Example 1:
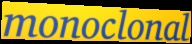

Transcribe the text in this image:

monoclonal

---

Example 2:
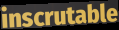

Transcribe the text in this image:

inscrutable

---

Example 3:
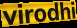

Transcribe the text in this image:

virodhi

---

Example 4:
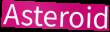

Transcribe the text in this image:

Asteroid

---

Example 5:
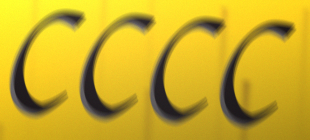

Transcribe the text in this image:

CCCC